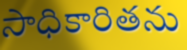
సాధికారితను